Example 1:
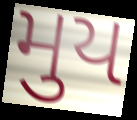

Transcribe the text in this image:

મુય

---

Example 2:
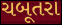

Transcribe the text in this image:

ચબૂતરા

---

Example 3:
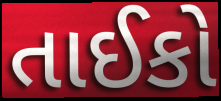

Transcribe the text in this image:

તાઈકો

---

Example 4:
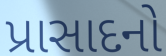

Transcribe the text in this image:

પ્રાસાદનો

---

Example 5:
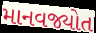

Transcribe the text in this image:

માનવજ્યોત